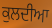
ਕੁਲਦੀਆ